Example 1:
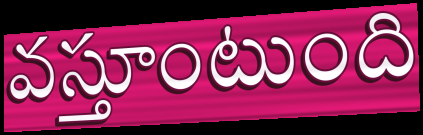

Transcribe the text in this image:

వస్తూంటుంది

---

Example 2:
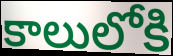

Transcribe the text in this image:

కాలులోకి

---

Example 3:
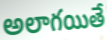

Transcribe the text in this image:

అలాగయితే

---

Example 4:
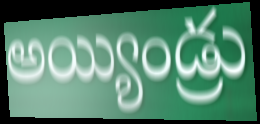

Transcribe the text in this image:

అయ్యిండ్రు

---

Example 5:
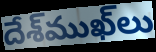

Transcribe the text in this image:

దేశ్‌ముఖ్‌లు